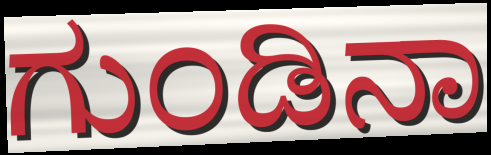
ಗುಂಡಿನಾ